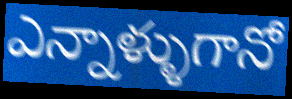
ఎన్నాళ్ళుగానో